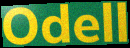
Odell